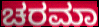
ಚರಮಾ